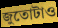
জুতোটাও